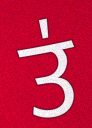
उ॑